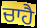
ਚਾਹੈ